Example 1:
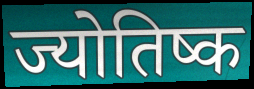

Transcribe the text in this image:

ज्योतिष्क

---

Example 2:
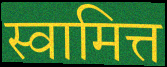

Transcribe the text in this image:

स्वामित्त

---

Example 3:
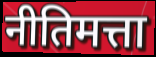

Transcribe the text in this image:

नीतिमत्ता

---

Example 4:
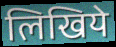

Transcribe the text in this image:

लिखिये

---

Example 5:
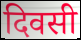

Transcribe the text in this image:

दिवसी